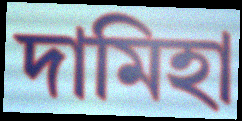
দামিহা